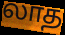
லாத